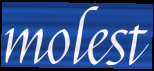
molest